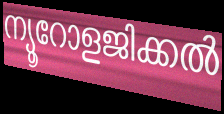
ന്യൂറോളജിക്കൽ